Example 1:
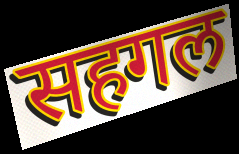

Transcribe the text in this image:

सहगल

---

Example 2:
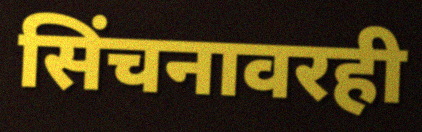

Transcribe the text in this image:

सिंचनावरही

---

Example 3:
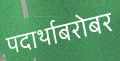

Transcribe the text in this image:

पदार्थाबरोबर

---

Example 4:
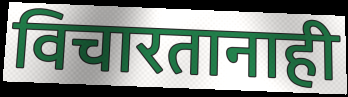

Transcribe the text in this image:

विचारतानाही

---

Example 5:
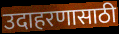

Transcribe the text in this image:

उदाहरणासाठी